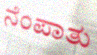
ನೆಂಪಾತು